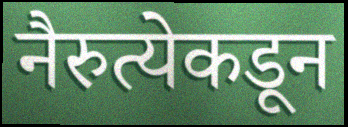
नैरुत्येकडून